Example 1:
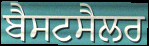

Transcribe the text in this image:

ਬੈਸਟਸੈਲਰ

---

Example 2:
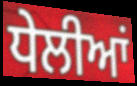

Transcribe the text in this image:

ਧੇਲੀਆਂ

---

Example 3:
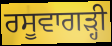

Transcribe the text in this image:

ਰਸੂਵਾਗੜ੍ਹੀ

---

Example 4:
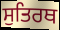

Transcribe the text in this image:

ਸੁਤਿਰਥ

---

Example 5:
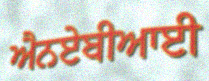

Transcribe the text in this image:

ਐਨਏਬੀਆਈ